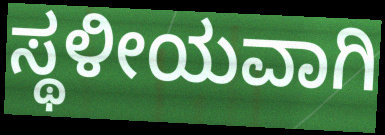
ಸ್ಥಳೀಯವಾಗಿ